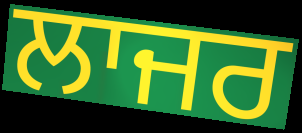
ਲਾਜਰ